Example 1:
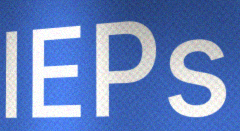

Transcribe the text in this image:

IEPs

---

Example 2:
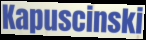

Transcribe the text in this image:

Kapuscinski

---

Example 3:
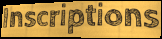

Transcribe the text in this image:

Inscriptions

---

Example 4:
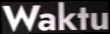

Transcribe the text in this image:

Waktu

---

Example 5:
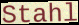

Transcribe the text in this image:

Stahl